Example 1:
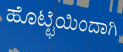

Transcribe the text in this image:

ಹೊಟ್ಟೆಯಿಂದಾಗಿ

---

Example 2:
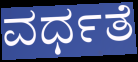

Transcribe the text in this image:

ವರ್ಧತೆ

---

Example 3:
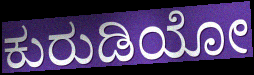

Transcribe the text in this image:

ಕುರುಡಿಯೋ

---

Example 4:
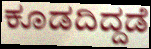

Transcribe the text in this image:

ಕೂಡದಿದ್ದಡೆ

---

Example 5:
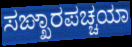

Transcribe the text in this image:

ಸಙ್ಖಾರಪಚ್ಚಯಾ